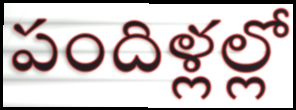
పందిళ్లల్లో